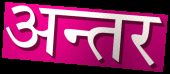
अन्‍तर